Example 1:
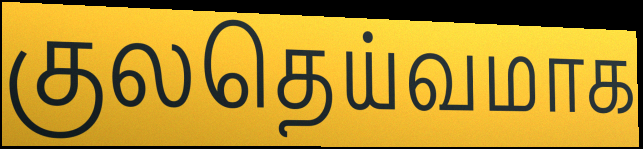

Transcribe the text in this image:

குலதெய்வமாக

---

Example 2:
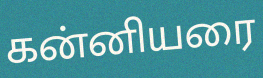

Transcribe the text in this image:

கன்னியரை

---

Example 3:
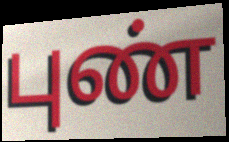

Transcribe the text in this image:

புண்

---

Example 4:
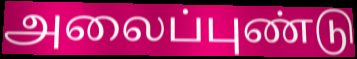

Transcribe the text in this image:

அலைப்புண்டு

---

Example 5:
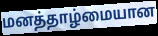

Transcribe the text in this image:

மனத்தாழ்மையான